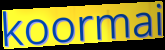
koormai